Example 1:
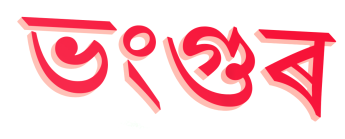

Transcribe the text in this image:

ভংগুৰ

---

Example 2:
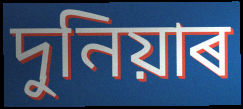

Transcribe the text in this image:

দুনিয়াৰ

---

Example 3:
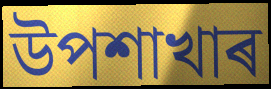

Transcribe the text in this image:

উপশাখাৰ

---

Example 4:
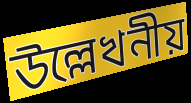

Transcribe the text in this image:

উল্লেখনীয়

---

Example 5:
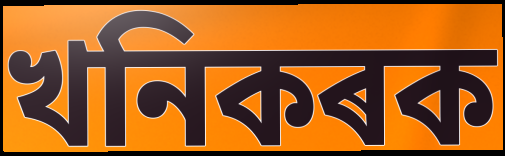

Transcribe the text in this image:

খনিকৰক